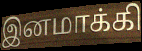
இனமாக்கி